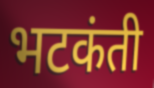
भटकंती